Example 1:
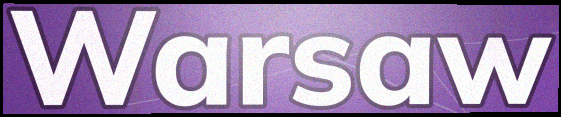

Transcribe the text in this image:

Warsaw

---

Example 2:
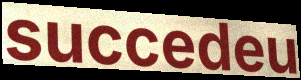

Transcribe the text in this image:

succedeu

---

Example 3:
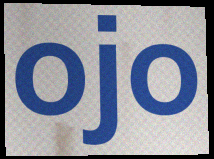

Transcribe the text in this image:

ojo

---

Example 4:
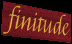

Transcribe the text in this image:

finitude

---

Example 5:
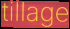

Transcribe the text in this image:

tillage